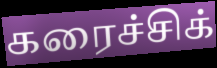
கரைச்சிக்